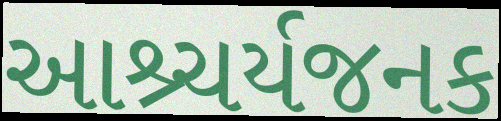
આશ્ર્ચર્યજનક